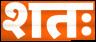
शतः